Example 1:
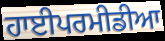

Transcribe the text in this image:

ਹਾਈਪਰਮੀਡੀਆ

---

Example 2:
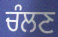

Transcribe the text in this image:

ਚੰਲਣ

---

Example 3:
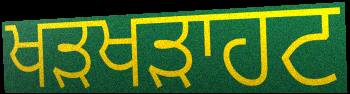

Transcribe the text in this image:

ਖੜਖੜਾਹਟ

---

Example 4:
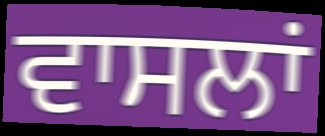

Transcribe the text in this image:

ਵਾਸਲਾਂ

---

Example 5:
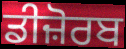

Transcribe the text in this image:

ਡੀਜ਼ੋਰਬ